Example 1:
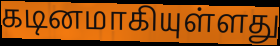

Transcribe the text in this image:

கடினமாகியுள்ளது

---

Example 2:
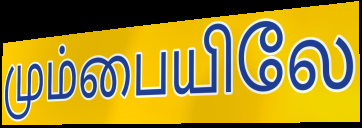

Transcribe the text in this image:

மும்பையிலே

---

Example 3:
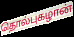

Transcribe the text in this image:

தொல்புகழான்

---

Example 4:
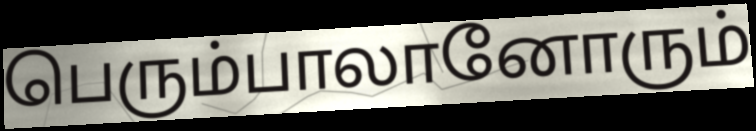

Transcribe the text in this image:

பெரும்பாலானோரும்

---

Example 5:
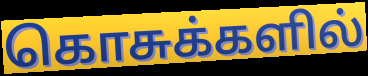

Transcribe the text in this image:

கொசுக்களில்